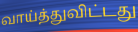
வாய்த்துவிட்டது